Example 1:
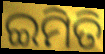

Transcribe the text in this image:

ଇମିତି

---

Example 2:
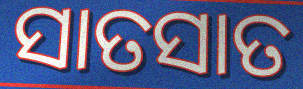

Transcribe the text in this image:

ସାତସାତ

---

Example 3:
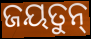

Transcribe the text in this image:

ଜୟତୁନ୍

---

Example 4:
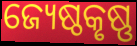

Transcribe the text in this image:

ଜ୍ୟେଷ୍ଠକୃଷ୍ଣ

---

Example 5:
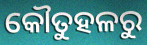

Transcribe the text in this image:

କୌତୁହଳରୁ